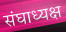
संघाध्यक्ष